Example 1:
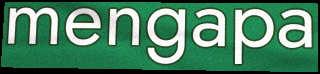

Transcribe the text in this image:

mengapa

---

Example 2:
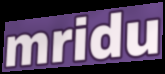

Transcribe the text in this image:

mridu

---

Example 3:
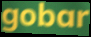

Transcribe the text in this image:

gobar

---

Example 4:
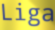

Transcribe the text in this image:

Liga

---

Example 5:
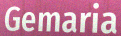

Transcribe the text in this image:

Gemaria